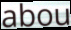
abou